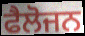
ਫੈਲੋਜਨ